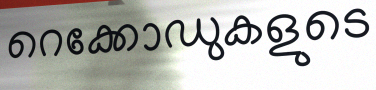
റെക്കോഡുകളുടെ